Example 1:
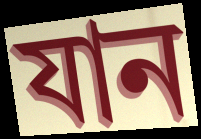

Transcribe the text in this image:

যান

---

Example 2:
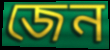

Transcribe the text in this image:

জেন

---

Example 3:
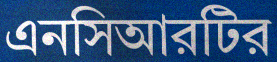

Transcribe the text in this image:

এনসিআরটির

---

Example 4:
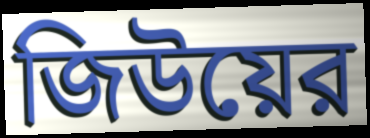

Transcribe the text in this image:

জিউয়ের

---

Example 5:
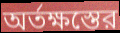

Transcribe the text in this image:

অর্তক্ষস্তের